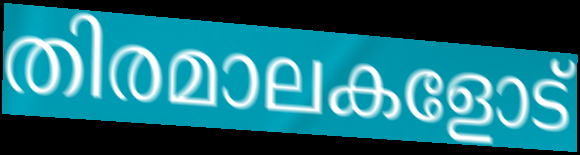
തിരമാലകളോട്